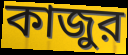
কাজুর